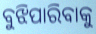
ବୁଝିପାରିବାକୁ